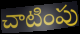
చాటింపు